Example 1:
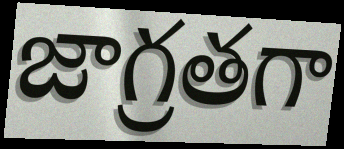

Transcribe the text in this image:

జాగ్రతగా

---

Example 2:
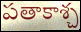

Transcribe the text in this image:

పతాకాశ్చ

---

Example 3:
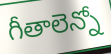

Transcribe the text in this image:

గీతాలెన్నో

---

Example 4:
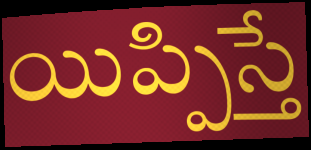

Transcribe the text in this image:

యిప్పిస్తే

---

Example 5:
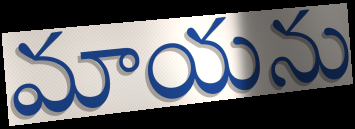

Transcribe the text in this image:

మాయను